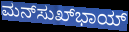
ಮನ್‌ಸುಖ್‌ಭಾಯ್